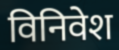
विनिवेश